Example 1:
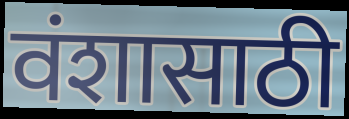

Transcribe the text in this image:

वंशासाठी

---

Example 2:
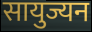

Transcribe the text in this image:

सायुज्यन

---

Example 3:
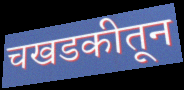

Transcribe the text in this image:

चखडकीतून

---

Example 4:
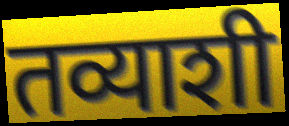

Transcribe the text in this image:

तव्याशी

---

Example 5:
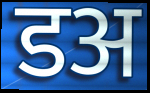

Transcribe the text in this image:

डअ